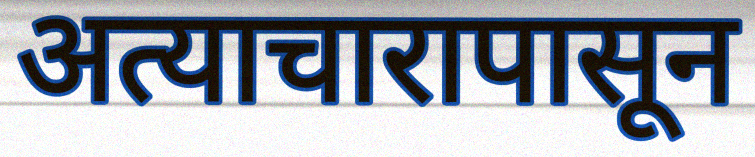
अत्याचारापासून